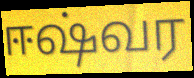
ஈஷ்வர